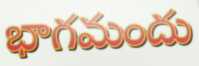
భాగమందు